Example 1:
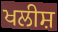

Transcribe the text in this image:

ਖਲੀਸ਼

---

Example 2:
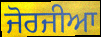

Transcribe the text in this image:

ਜੋਰਜੀਆ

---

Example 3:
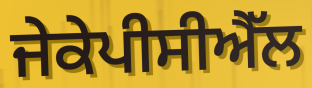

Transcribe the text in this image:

ਜੇਕੇਪੀਸੀਐੱਲ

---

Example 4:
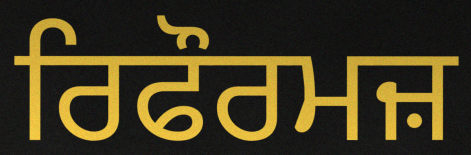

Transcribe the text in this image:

ਰਿਫੌਰਮਜ਼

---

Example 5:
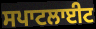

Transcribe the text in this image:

ਸਪਾਟਲਾਈਟ